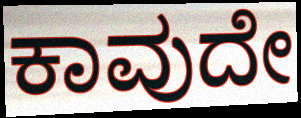
ಕಾವುದೇ